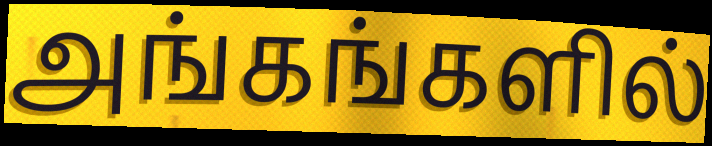
அங்கங்களில்